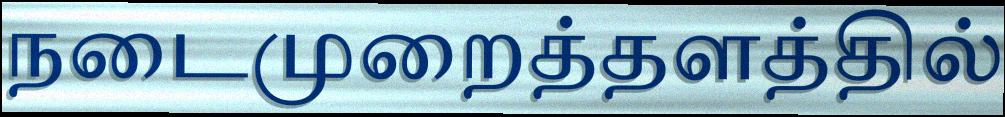
நடைமுறைத்தளத்தில்